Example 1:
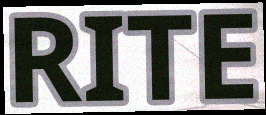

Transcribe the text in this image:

RITE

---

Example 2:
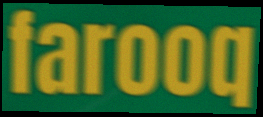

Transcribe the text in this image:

farooq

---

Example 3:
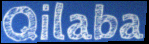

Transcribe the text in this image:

Qilaba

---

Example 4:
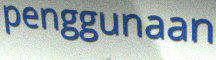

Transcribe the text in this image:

penggunaan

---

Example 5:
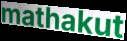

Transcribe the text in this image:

mathakut